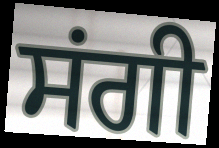
ਸਂਗੀ